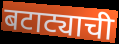
बटाट्याची